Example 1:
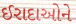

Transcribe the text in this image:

ઈરાદાઓને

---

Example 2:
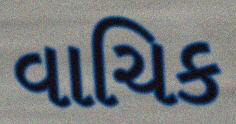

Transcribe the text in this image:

વાચિક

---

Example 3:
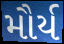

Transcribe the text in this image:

મૌર્ય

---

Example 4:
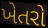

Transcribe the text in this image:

ખેતરો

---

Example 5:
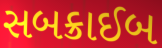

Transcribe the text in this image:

સબક્રાઈબ